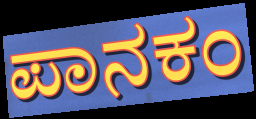
ಪಾನಕಂ